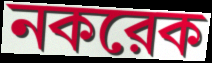
নকরেক